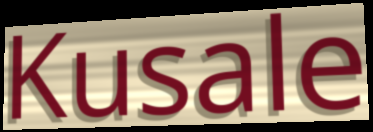
Kusale